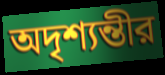
অদৃশ্যন্তীর